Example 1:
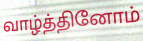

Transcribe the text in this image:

வாழ்த்தினோம்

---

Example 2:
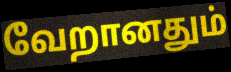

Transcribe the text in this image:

வேறானதும்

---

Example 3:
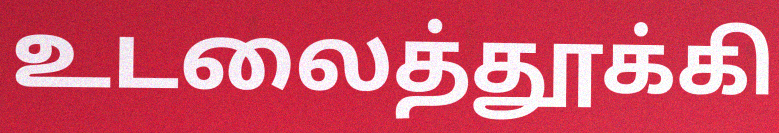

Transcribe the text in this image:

உடலைத்தூக்கி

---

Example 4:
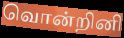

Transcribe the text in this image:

வொன்றினி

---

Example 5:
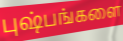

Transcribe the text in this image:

புஷ்பங்களை